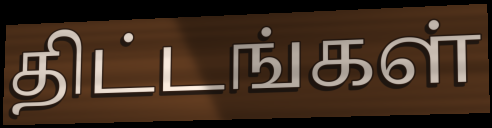
திட்டங்கள்